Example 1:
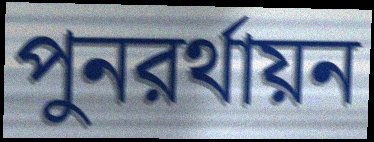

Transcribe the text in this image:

পুনরর্থায়ন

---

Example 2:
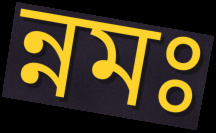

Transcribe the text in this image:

ন্নমঃ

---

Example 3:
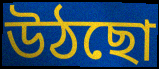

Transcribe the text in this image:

উঠছো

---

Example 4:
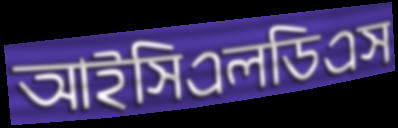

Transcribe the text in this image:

আইসিএলডিএস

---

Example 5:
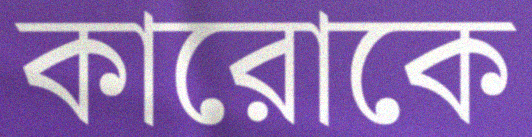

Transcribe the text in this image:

কারোকে